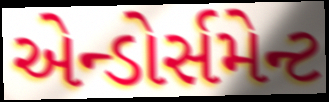
એન્ડોર્સમેન્ટ